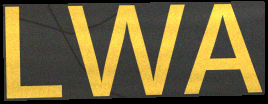
LWA